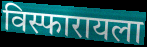
विस्फारायला